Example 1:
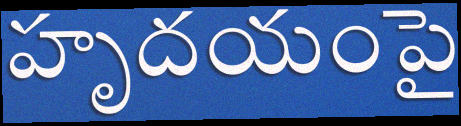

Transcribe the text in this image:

హృదయంపై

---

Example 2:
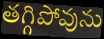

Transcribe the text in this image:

తగ్గిపోవును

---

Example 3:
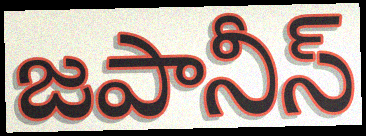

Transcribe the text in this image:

జపానీస్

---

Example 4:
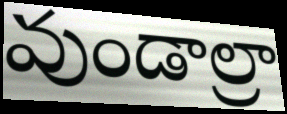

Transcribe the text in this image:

వుండాల్రా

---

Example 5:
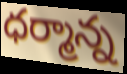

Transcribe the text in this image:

ధర్మాన్న